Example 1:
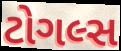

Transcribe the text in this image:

ટોગલ્સ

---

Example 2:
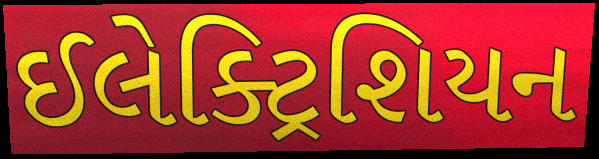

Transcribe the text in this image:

ઈલેક્ટ્રિશિયન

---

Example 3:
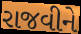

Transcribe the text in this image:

રાજવીને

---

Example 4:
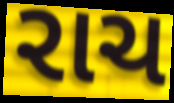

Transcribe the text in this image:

રાચ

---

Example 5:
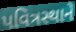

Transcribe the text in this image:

પવિત્રસ્થાને